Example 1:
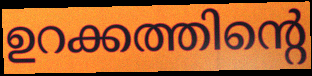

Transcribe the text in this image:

ഉറക്കത്തിന്റെ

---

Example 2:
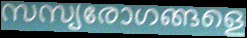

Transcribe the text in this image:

സസ്യരോഗങ്ങളെ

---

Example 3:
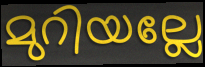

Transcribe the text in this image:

മുറിയല്ലേ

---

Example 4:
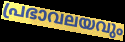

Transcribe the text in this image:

പ്രഭാവലയവും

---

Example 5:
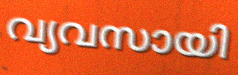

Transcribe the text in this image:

വ്യവസായി